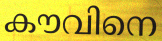
കൗവിനെ